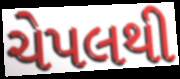
ચેપલથી